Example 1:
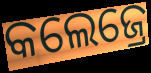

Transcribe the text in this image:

କଲେଜ୍ରେ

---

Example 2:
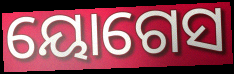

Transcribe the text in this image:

ୟୋଗେସ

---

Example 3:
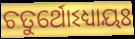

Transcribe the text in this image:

ଚତୁର୍ଥୋଽଧ୍ୟାୟଃ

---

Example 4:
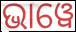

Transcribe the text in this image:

ଭାୱେ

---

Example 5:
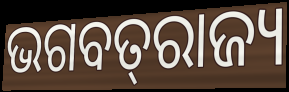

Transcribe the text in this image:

ଭଗବତ୍‌ରାଜ୍ୟ